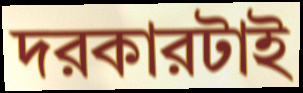
দরকারটাই